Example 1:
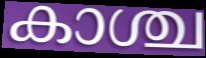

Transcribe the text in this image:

കാശ്ച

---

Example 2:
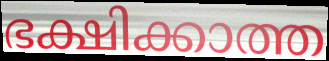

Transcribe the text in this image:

ഭക്ഷിക്കാത്ത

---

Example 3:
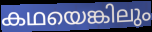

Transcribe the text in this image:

കഥയെങ്കിലും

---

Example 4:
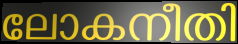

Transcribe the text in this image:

ലോകനീതി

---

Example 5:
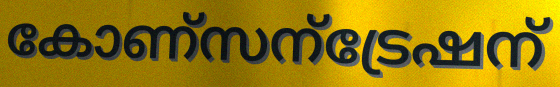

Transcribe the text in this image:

കോണ്സന്ട്രേഷന്